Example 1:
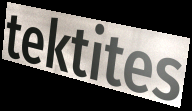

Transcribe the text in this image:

tektites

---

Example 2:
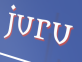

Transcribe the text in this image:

juru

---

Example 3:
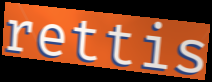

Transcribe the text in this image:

rettis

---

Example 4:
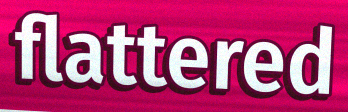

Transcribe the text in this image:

flattered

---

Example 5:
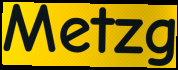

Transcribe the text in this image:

Metzg